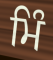
ਮਿੰ